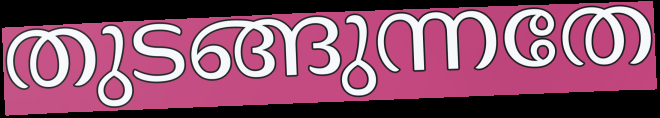
തുടങ്ങുന്നതേ